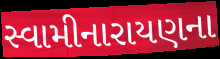
સ્વામીનારાયણના